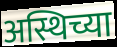
अस्थिच्या